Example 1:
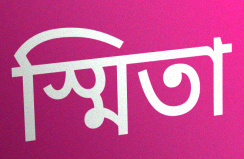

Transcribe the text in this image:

স্মিতা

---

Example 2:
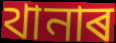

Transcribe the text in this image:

থানাৰ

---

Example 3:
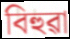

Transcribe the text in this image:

বিহুৱা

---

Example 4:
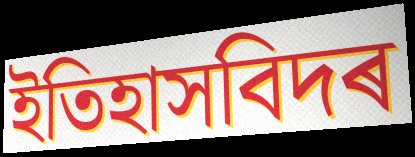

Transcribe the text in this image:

ইতিহাসবিদৰ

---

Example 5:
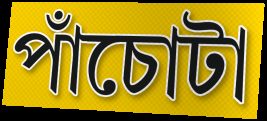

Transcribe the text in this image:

পাঁচোটা